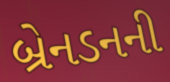
બ્રેનડનની